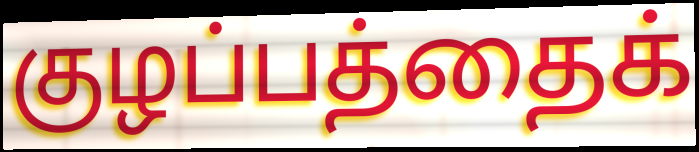
குழப்பத்தைக்